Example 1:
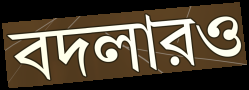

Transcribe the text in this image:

বদলারও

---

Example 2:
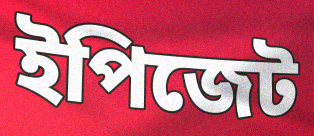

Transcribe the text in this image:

ইপিজেট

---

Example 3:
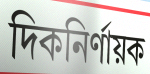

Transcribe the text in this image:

দিকনির্ণায়ক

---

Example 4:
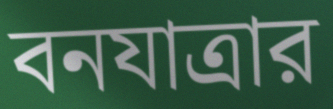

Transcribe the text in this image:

বনযাত্রার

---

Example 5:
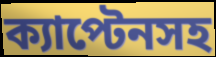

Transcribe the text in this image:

ক্যাপ্টেনসহ